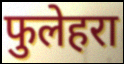
फुलेहरा